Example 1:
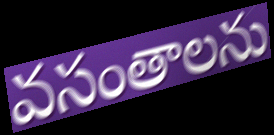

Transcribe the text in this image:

వసంతాలను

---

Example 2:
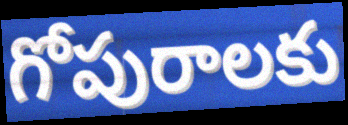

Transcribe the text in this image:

గోపురాలకు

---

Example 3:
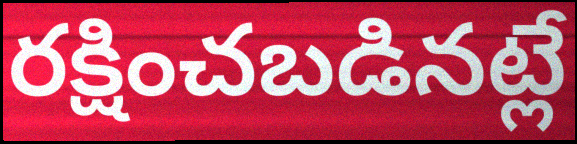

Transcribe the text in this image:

రక్షించబడినట్లే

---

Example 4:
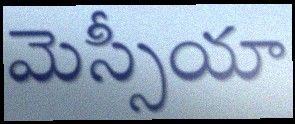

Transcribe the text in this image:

మెస్సీయా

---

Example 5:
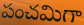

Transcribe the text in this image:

పంచమిగా